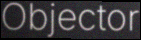
Objector